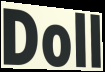
Doll